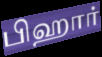
பிஹார்